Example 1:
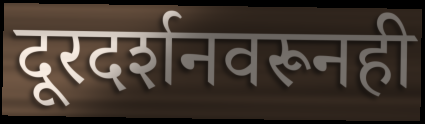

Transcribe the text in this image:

दूरदर्शनवरूनही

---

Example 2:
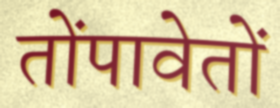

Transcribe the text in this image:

तोंपावेतों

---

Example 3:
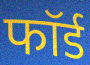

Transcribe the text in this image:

फॉर्ड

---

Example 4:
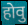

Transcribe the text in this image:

होवु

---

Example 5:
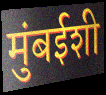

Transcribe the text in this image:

मुंबईशी